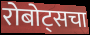
रोबोट्सचा